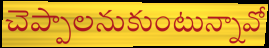
చెప్పాలనుకుంటున్నావో